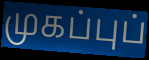
முகப்புப்